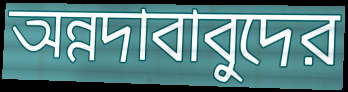
অন্নদাবাবুদের